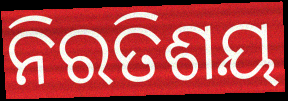
ନିରତିଶୟ